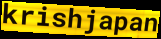
krishjapan